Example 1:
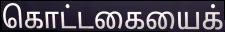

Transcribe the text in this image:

கொட்டகையைக்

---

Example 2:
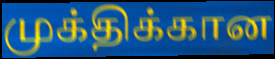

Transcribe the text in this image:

முக்திக்கான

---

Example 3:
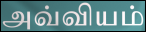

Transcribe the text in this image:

அவ்வியம்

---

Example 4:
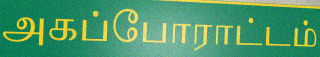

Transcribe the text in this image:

அகப்போராட்டம்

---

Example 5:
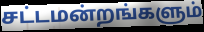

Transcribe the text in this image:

சட்டமன்றங்களும்